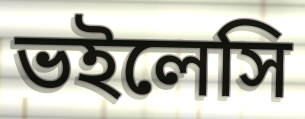
ভইলেসি